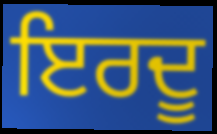
ਇਰਦੂ